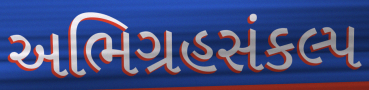
અભિગ્રહસંકલ્પ